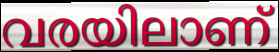
വരയിലാണ്